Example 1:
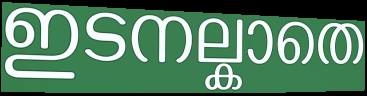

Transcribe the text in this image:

ഇടനല്കാതെ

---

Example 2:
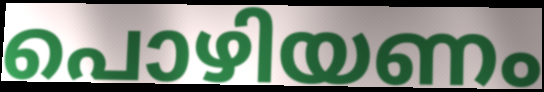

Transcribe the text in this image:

പൊഴിയണം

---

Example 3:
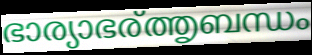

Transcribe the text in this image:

ഭാര്യാഭര്ത്തൃബന്ധം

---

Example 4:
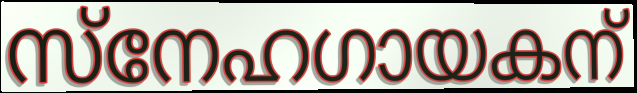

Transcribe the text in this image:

സ്നേഹഗായകന്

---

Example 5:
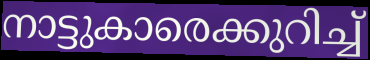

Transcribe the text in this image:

നാട്ടുകാരെക്കുറിച്ച്